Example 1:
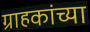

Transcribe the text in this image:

ग्राहकांच्या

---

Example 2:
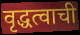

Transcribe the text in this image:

वृद्धत्वाची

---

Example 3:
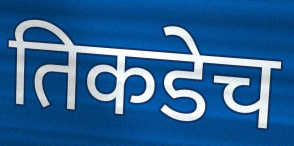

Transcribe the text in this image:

तिकडेच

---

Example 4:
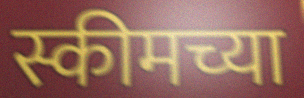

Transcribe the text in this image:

स्कीमच्या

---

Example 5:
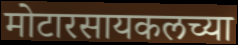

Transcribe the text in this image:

मोटारसायकलच्या